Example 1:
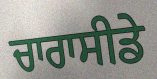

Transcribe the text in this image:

ਚਾਰਾਸੀਡੇ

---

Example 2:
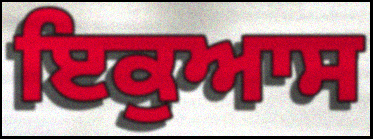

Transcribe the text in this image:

ਇਕੁਆਸ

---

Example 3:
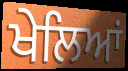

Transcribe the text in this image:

ਖੇਲਿਆਂ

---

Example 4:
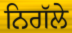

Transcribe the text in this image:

ਨਿਗੱਲੇ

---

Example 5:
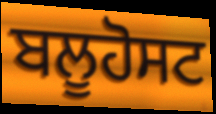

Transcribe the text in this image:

ਬਲੂਹੋਸਟ